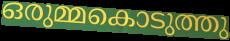
ഒരുമ്മകൊടുത്തു